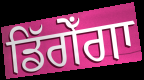
ਡਿੱਗੇਁਗਾ